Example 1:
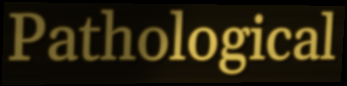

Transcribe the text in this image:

Pathological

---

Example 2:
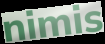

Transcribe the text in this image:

nimis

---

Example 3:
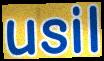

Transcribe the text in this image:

usil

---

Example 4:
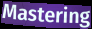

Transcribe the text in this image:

Mastering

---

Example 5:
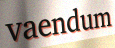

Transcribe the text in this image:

vaendum